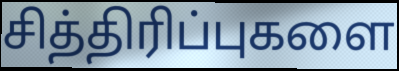
சித்திரிப்புகளை